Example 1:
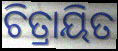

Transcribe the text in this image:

ଚିତ୍ରାୟିତ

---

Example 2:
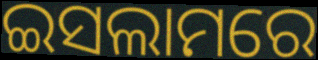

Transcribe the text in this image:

ଇସଲାମରେ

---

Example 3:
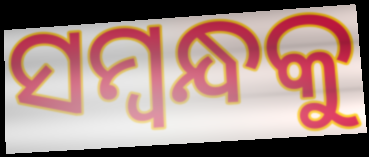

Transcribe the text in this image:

ସମ୍ବନ୍ଧକୁ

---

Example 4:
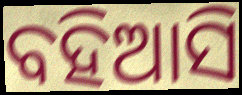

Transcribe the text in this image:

ବହିଆସି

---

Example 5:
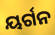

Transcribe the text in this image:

ୟର୍ଗନ